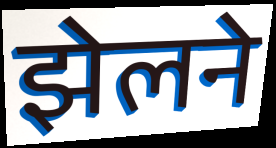
झेलने